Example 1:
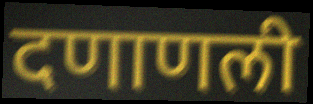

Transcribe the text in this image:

दणाणली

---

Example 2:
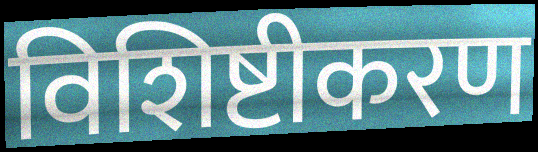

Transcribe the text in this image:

विशिष्टीकरण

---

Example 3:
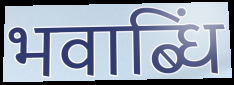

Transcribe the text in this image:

भवाब्धिं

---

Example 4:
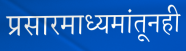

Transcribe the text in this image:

प्रसारमाध्यमांतूनही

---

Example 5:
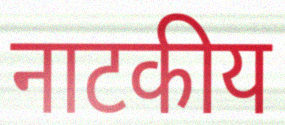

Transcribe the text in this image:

नाटकीय